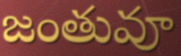
జంతువూ